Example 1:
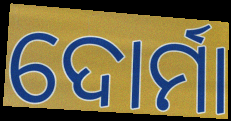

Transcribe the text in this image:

ଦୋର୍ମା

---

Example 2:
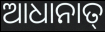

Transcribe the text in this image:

ଆଧାନାତ୍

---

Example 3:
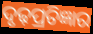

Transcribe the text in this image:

ଦୃଢ଼ପ୍ରତିଜ୍ଞାର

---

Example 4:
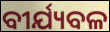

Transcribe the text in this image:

ବୀର୍ଯ୍ୟବଳ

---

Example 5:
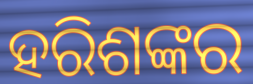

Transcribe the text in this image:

ହରିଶଙ୍କର